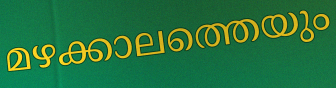
മഴക്കാലത്തെയും